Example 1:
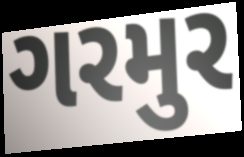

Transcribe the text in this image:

ગરમુર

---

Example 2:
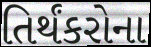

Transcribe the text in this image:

તિર્થંકરોના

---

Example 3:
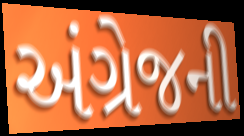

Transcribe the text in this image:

અંગ્રેજની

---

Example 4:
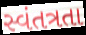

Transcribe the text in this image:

સ્વંતત્રતા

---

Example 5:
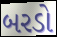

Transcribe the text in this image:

બરડો